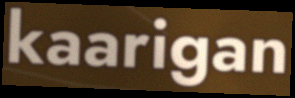
kaarigan